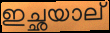
ഇച്ഛയാല്